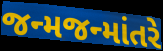
જન્મજન્માંતરે